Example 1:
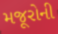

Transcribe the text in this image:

મજૂરોની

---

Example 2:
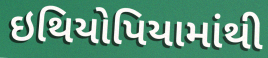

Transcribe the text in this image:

ઇથિયોપિયામાંથી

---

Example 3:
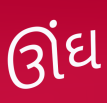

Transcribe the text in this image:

ઊંઘ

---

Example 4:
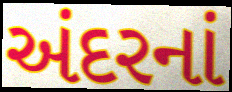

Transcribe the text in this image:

અંદરનાં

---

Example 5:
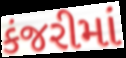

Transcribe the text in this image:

કંજરીમાં